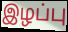
இழப்பு